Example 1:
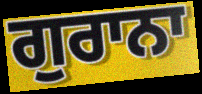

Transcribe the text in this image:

ਗੁਰਾਨਾ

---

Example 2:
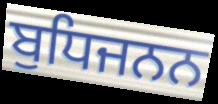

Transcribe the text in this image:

ਬੁਧਿਜਨਨ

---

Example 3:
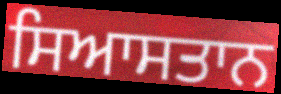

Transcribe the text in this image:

ਸਿਆਸਤਾਨ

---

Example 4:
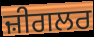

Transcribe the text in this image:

ਜ਼ੀਗਲਰ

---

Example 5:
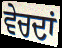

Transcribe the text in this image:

ਵੇਚਦਾਂ